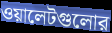
ওয়ালেটগুলোর